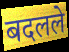
बदलले